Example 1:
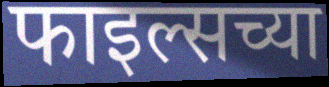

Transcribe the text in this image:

फाइल्सच्या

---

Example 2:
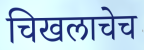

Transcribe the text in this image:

चिखलाचेच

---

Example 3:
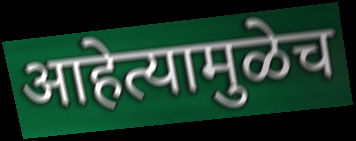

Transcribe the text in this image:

आहेत्यामुळेच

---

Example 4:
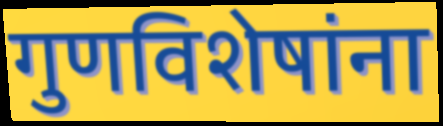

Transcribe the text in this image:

गुणविशेषांना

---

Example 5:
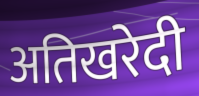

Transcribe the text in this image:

अतिखरेदी